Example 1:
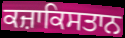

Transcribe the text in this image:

ਕਜ਼ਾਕਿਸਤਾਨ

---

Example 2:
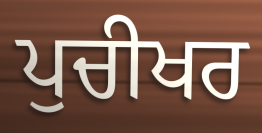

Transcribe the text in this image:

ਪੁਚੀਖਰ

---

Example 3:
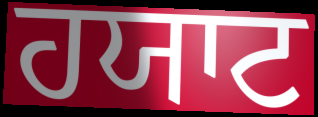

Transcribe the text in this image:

ਹਯਾਟ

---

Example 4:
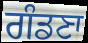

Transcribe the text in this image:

ਗੰਡਣਾ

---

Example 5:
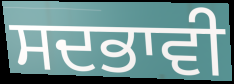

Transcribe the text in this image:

ਸਦਭਾਵੀ